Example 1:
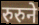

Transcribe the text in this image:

रुरुने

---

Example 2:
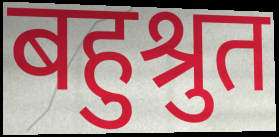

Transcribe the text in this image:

बहुश्रुत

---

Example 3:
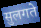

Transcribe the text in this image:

सुलगते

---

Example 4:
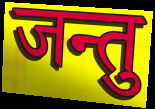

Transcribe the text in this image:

जन्तु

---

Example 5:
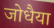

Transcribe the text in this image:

जोधैया